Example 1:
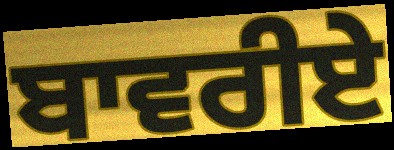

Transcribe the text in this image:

ਬਾਵਰੀਏ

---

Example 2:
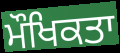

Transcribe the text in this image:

ਮੌਖਿਕਤਾ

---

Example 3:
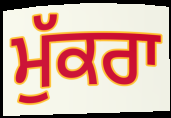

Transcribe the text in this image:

ਮੁੱਕਰਾ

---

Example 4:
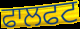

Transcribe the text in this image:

ਫਾਲਫਟ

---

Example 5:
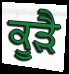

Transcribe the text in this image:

ਕੂੜੈ